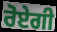
ਰੋਏਗੀ